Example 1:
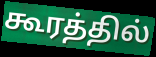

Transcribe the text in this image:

கூரத்தில்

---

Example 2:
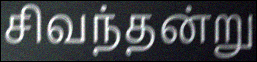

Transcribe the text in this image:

சிவந்தன்று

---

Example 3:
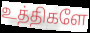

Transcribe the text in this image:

உத்திகளே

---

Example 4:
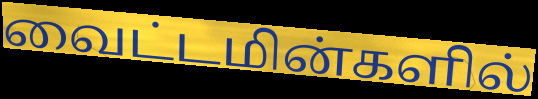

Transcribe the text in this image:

வைட்டமின்களில்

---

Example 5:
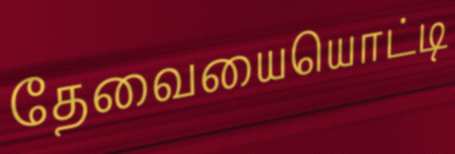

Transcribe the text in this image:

தேவையையொட்டி